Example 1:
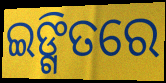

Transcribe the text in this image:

ଇଙ୍ଗିତରେ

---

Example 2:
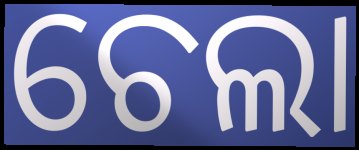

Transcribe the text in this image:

ଚେଲା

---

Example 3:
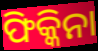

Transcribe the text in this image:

ଫିକ୍କିନା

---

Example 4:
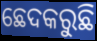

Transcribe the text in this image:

ଛେଦକରୁଛି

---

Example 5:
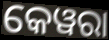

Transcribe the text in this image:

କେୱରା